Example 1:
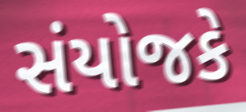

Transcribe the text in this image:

સંયોજકે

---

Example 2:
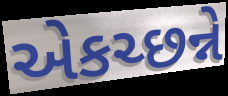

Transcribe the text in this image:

એકચ્છન્ને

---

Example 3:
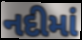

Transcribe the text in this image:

નદીમાં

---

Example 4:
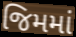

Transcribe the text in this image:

જિમમાં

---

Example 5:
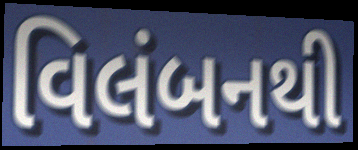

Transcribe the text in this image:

વિલંબનથી